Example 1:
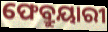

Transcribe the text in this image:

ଫେବ୍ରୁୟାରୀ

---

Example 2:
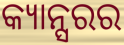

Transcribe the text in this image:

କ୍ୟାନ୍ସରର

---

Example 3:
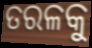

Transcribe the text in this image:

ତରଳକୁ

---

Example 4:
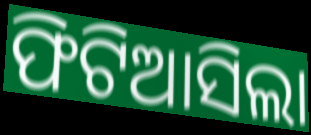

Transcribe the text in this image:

ଫିଟିଆସିଲା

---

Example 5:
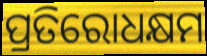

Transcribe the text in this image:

ପ୍ରତିରୋଧକ୍ଷମ